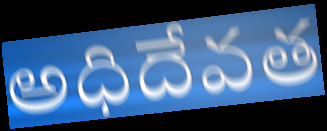
అధిదేవత